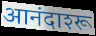
आनंदाश्रू